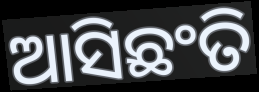
ଆସିଛଂତି